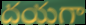
దయగా